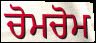
ਚੋਮਚੋਮ